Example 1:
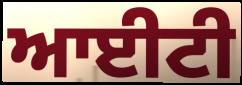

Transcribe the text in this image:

ਆਈਟੀ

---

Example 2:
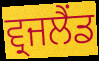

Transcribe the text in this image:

ਵ੍ਰਜਲੈਂਡ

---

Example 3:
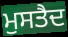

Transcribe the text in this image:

ਮੁਸਤੈਦ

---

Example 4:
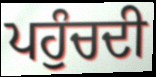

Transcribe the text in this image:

ਪਹੁੰਚਦੀ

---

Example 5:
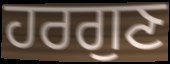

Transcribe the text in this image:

ਹਰਗੁਣ